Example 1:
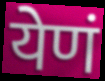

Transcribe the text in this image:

येणं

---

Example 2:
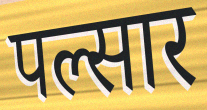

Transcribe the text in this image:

पल्सार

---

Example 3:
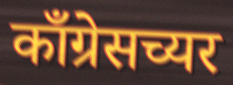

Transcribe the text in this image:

काँग्रेसच्यर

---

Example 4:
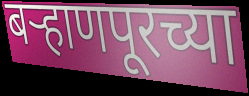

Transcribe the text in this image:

बऱ्हाणपूरच्या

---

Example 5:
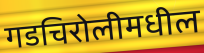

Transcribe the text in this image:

गडचिरोलीमधील